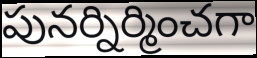
పునర్నిర్మించగా